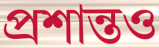
প্রশান্তও